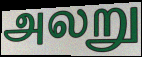
அலறு